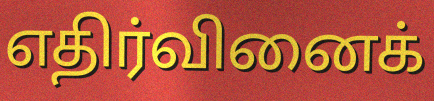
எதிர்வினைக்